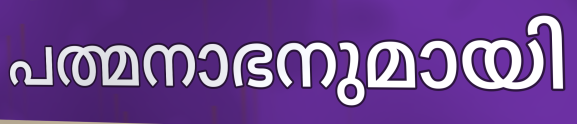
പത്മനാഭനുമായി